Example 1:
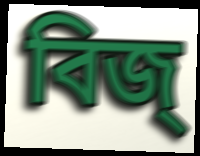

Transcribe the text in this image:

বিজ্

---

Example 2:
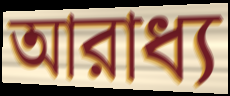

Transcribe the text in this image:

আরাধ্য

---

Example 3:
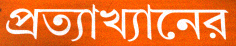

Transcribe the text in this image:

প্রত্যাখ্যানের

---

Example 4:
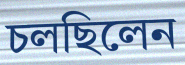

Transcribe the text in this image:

চলছিলেন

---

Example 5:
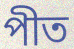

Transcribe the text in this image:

পীত